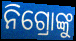
ନିଗ୍ରୋଙ୍କୁ